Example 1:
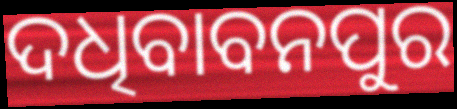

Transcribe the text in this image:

ଦଧିବାବନପୁର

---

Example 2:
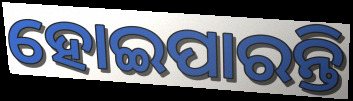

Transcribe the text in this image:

ହୋଇପାରନ୍ତି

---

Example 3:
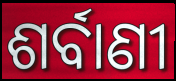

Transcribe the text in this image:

ଶର୍ବାଣୀ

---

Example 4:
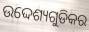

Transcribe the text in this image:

ଉଦ୍ଦେଶ୍ୟଗୁଡିକର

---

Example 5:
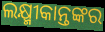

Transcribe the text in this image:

ଲକ୍ଷ୍ମୀକାନ୍ତଙ୍କର